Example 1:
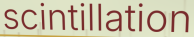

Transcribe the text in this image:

scintillation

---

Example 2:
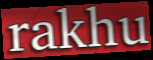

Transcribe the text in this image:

rakhu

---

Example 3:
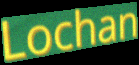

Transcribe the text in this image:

Lochan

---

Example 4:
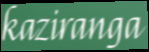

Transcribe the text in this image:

kaziranga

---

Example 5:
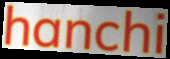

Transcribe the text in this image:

hanchi